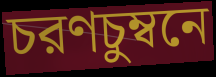
চরণচুম্বনে